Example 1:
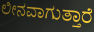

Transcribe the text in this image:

ಲೀನವಾಗುತ್ತಾರೆ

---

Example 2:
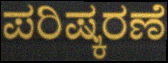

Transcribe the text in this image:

ಪರಿಷ್ಕರಣೆ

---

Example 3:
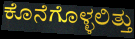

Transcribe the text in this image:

ಕೊನೆಗೊಳ್ಳಲಿತ್ತು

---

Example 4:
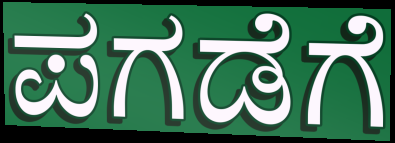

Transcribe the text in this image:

ಪಗಡೆಗೆ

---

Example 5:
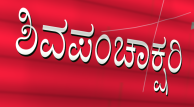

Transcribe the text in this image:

ಶಿವಪಂಚಾಕ್ಷರಿ